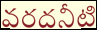
వరదనీటి